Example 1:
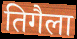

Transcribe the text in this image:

तिगैला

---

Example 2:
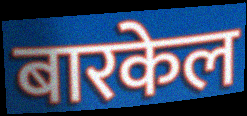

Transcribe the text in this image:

बारकेल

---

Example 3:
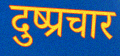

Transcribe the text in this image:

दुष्प्रचार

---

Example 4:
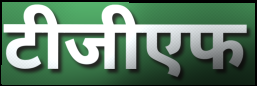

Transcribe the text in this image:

टीजीएफ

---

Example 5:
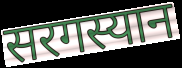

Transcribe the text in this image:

सरगस्यान